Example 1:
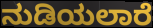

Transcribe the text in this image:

ನುಡಿಯಲಾರೆ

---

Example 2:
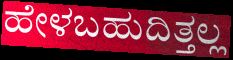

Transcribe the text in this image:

ಹೇಳಬಹುದಿತ್ತಲ್ಲ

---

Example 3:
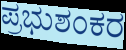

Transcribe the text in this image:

ಪ್ರಭುಶಂಕರ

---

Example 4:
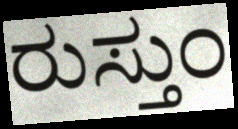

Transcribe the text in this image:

ರುಸ್ತುಂ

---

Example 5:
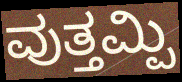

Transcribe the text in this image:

ವುತ್ತಮ್ಪಿ